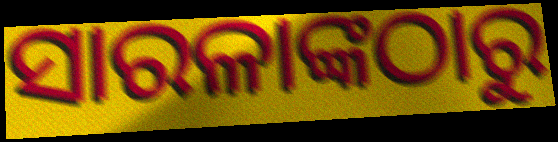
ସାରଳାଙ୍କଠାରୁ